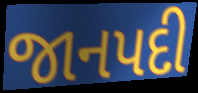
જાનપદી